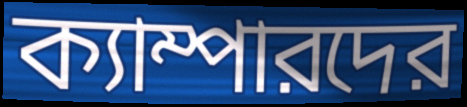
ক্যাম্পারদের